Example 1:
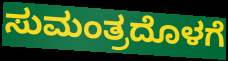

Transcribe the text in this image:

ಸುಮಂತ್ರದೊಳಗೆ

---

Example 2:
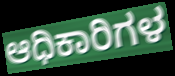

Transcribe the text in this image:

ಆಧಿಕಾರಿಗಳ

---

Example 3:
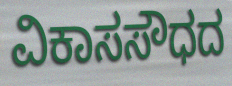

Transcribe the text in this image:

ವಿಕಾಸಸೌಧದ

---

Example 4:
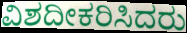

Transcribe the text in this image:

ವಿಶದೀಕರಿಸಿದರು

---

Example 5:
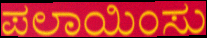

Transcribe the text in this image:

ಪಲಾಯಿಂಸು